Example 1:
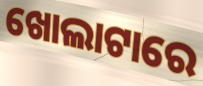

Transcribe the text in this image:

ଖୋଲାଟାରେ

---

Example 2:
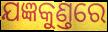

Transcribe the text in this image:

ଯଜ୍ଞକୁଣ୍ତରେ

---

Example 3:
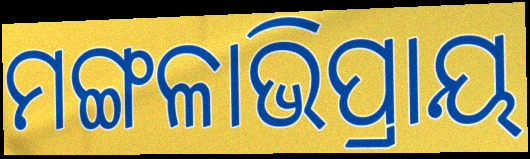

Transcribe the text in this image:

ମଙ୍ଗଳାଭିପ୍ରାୟ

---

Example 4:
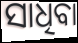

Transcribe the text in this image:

ସାଧିବା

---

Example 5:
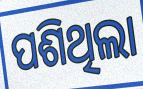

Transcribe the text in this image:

ପଶିଥିଲା